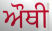
ਔਥੀ